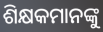
ଶିକ୍ଷକମାନଙ୍କୁ